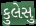
કુલેસુ